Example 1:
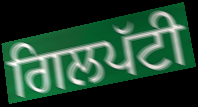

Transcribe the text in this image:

ਗਿਲਪੱਟੀ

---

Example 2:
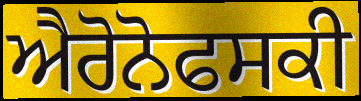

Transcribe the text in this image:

ਐਰੋਨੋਫਸਕੀ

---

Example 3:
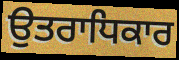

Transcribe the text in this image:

ਉਤਰਾਧਿਕਾਰ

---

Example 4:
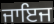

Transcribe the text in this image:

ਜਾਇਜ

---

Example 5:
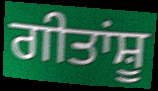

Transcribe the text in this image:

ਗੀਤਾਂਸ਼ੂ